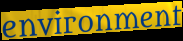
environment